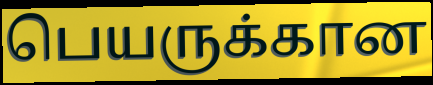
பெயருக்கான